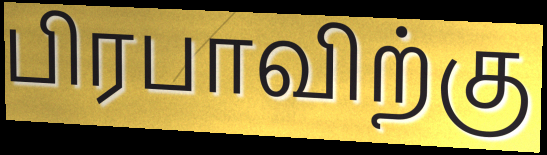
பிரபாவிற்கு